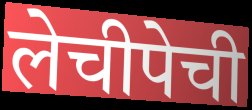
लेचीपेची